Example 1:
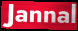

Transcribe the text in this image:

Jannal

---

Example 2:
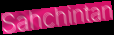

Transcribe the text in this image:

Sahchintan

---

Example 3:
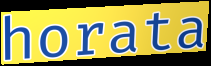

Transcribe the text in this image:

horata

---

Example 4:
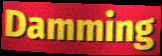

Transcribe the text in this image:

Damming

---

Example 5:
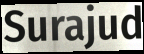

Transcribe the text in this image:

Surajud